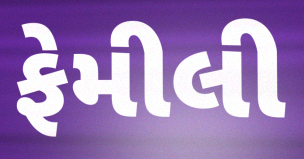
ફેમીલી